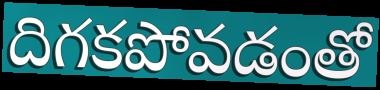
దిగకపోవడంతో